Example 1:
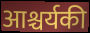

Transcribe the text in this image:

आश्चर्यकी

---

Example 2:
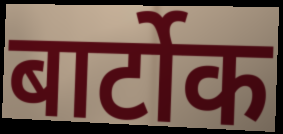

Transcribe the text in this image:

बार्टोक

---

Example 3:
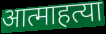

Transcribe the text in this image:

आत्माहत्या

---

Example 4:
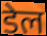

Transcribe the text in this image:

डेल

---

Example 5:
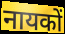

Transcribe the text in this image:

नायकों